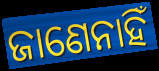
ଜାଣେନାହିଁ